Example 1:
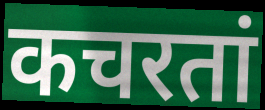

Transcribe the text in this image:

कचरतां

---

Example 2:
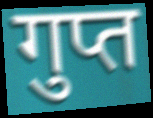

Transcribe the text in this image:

गुप्त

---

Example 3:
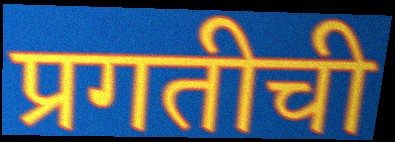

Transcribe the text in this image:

प्रगतीची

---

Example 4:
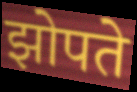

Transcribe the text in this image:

झोपते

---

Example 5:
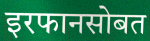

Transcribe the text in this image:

इरफानसोबत